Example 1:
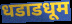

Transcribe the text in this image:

धडाडधूम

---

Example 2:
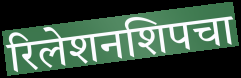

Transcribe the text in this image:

रिलेशनशिपचा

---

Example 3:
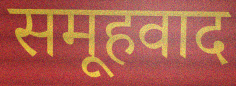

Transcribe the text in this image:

समूहवाद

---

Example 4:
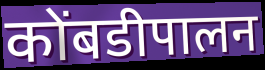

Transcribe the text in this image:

कोंबडीपालन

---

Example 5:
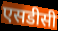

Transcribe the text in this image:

एसडीसी